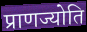
प्राणज्योति